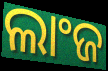
ଲାଂଜ